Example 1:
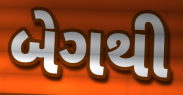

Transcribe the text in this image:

બેગથી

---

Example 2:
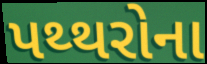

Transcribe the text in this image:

પથ્થરોના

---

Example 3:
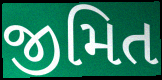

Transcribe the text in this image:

જીમિત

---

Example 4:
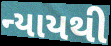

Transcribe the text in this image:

ન્યાયથી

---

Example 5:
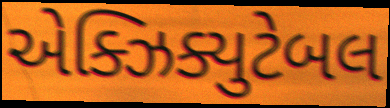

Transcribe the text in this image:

એક્ઝિક્યુટેબલ